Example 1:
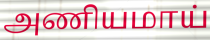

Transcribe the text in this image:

அணியமாய்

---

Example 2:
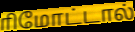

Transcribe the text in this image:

ரிமோட்டால்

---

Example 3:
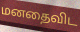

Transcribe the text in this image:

மனதைவிட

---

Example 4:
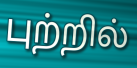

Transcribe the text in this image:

புற்றில்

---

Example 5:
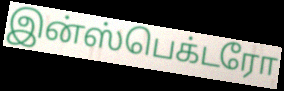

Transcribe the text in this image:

இன்ஸ்பெக்டரோ